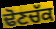
ਢੋਣਚੱਕ